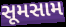
સૂમસામ